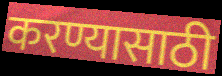
करण्यासाठी